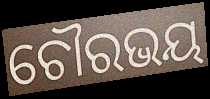
ଚୌରଭୟ